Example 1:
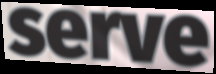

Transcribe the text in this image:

serve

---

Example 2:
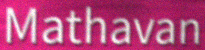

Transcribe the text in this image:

Mathavan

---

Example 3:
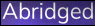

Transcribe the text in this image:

Abridged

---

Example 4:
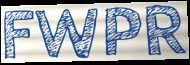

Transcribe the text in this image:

FWPR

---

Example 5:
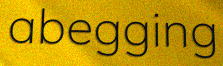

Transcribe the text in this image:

abegging